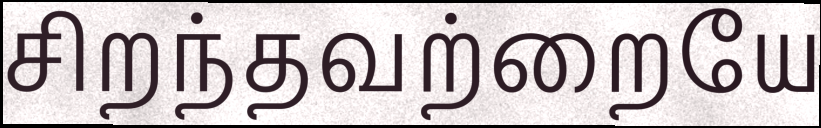
சிறந்தவற்றையே